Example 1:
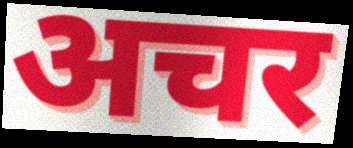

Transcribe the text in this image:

अचर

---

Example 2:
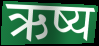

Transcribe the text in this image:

ऋष्य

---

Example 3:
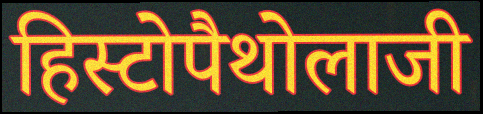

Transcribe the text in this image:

हिस्टोपैथोलाजी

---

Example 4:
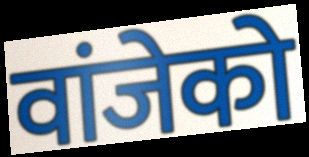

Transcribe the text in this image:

वांजेको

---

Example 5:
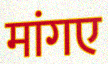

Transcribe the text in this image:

मांगए